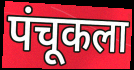
पंचूकला